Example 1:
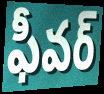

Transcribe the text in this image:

ఫీవర్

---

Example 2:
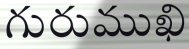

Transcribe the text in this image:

గురుముఖి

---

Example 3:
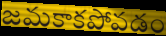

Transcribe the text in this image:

జమకాకపోవడం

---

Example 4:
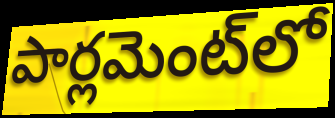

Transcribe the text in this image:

పార్లమెంట్‌లో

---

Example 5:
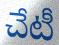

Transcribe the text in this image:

చేటీ